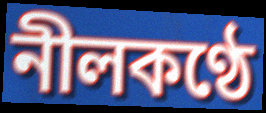
নীলকণ্ঠে